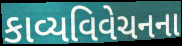
કાવ્યવિવેચનના